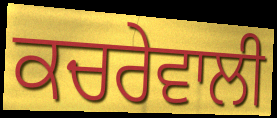
ਕਚਰੇਵਾਲੀ